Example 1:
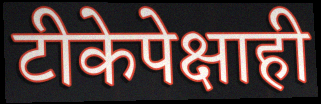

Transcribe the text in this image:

टीकेपेक्षाही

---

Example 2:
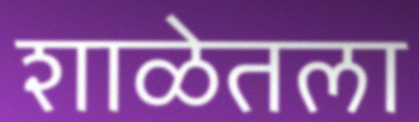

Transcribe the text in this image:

शाळेतला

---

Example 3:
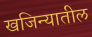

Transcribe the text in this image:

खजिन्यातील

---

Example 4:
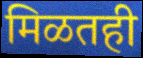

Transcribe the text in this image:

मिळतही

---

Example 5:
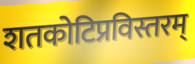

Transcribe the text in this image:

शतकोटिप्रविस्तरम्